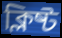
ক্লিষ্ট